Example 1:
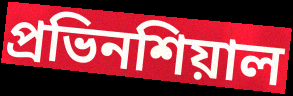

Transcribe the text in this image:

প্রভিনশিয়াল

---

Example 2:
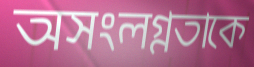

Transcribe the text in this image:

অসংলগ্নতাকে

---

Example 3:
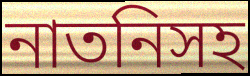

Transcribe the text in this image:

নাতনিসহ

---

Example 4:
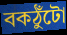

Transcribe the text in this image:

বকঠুঁটো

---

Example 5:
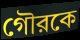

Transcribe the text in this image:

গৌরকে